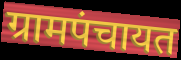
ग्रामपंचायत